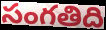
సంగతిది